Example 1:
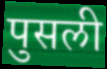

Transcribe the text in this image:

पुसली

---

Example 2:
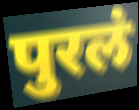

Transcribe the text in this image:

पुरलं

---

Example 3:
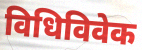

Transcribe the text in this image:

विधिविवेक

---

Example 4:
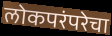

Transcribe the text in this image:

लोकपरंपरेचा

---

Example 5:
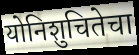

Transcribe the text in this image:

योनिशुचितेचा